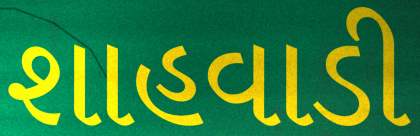
શાહવાડી